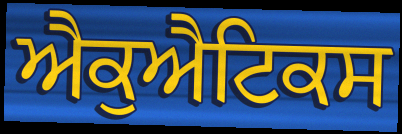
ਐਕੁਐਟਿਕਸ